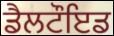
ਡੈਲਟੌਇਡ